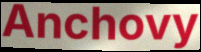
Anchovy